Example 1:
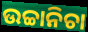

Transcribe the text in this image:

ଉଚ୍ଚାନିଚା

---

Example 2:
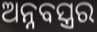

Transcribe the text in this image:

ଅନ୍ନବସ୍ତ୍ରର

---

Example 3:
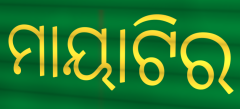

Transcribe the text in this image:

ମାୟାଟିର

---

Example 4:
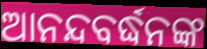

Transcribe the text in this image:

ଆନନ୍ଦବର୍ଦ୍ଧନଙ୍କ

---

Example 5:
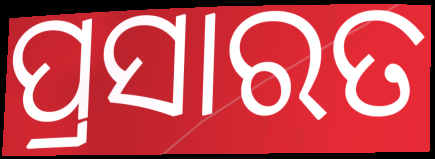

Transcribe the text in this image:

ପ୍ରସାରତ